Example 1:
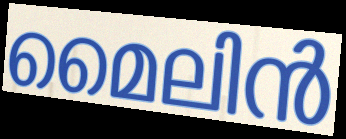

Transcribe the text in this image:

മൈലിൻ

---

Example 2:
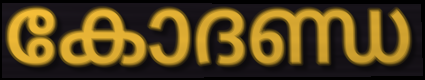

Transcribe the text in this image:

കോദണ്ഡ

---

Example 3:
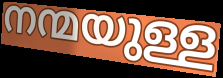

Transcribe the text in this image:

നന്മയുള്ള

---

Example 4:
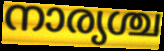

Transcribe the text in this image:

നാര്യശ്ച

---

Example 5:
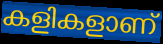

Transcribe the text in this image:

കളികളാണ്